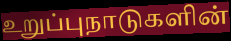
உறுப்புநாடுகளின்